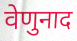
वेणुनाद